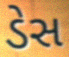
ડેસ